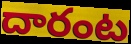
దారంట